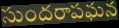
సుందరాపఘన